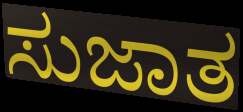
ಸುಜಾತ